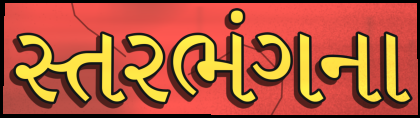
સ્તરભંગના